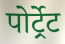
पोर्ट्रेट